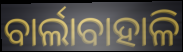
ବାର୍ଲାବାହାଳି